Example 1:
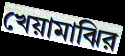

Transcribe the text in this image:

খেয়ামাঝির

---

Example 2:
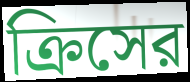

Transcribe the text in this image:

ক্রিসের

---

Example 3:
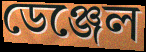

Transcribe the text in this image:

ডেঞ্জেল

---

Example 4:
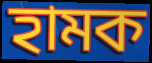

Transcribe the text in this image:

হামক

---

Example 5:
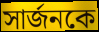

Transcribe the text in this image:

সার্জনকে